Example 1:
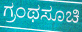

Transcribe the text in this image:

ಗ್ರಂಥಸೂಚಿ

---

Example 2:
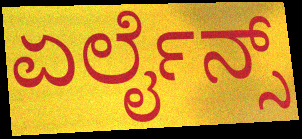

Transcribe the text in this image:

ಏರ್ಲೈನ್ಸ್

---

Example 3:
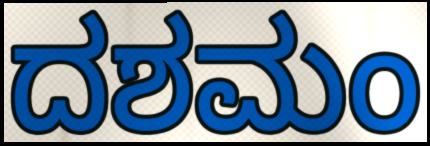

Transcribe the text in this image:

ದಶಮಂ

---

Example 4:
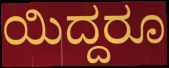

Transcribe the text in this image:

ಯಿದ್ದರೂ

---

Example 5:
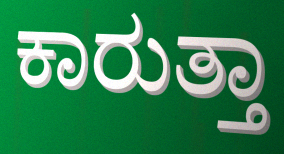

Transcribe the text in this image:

ಕಾರುತ್ತಾ